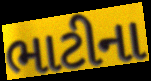
ભાટીના